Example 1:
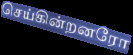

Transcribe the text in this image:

செய்கின்றனரோ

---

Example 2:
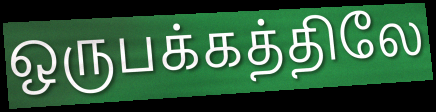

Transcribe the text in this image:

ஒருபக்கத்திலே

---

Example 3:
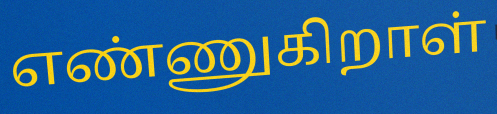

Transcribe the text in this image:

எண்ணுகிறாள்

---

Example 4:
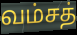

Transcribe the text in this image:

வம்சத்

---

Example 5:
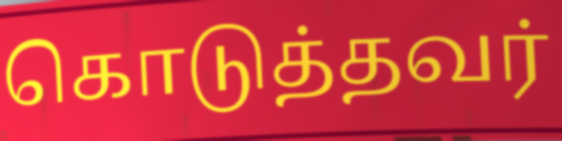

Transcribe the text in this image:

கொடுத்தவர்